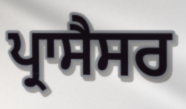
ਪ੍ਰਾਸੈਸਰ